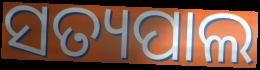
ସତ୍ୟପାଲ